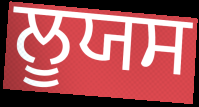
ਲੂਯਸ